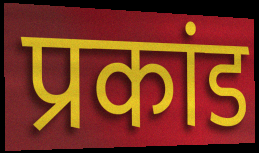
प्रकांड